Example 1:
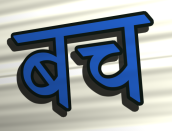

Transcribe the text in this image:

बच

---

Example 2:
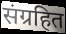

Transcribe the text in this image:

संग्रहित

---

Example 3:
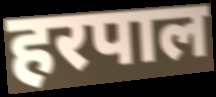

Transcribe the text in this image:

हरपाल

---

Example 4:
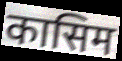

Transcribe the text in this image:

कासिम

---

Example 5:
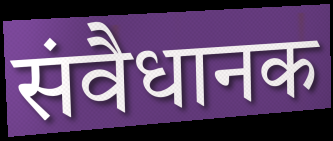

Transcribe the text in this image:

संवैधानक